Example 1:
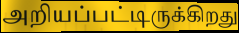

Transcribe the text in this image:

அறியப்பட்டிருக்கிறது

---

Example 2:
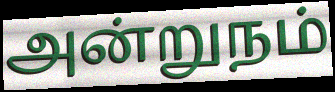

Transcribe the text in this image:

அன்றுநம்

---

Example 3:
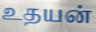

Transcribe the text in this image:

உதயன்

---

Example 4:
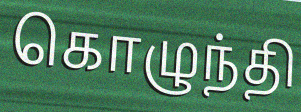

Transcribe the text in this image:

கொழுந்தி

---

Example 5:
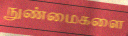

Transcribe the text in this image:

நுண்மைகளை